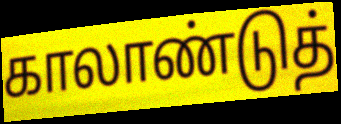
காலாண்டுத்